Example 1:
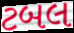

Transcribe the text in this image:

ટબલ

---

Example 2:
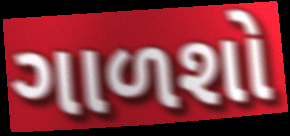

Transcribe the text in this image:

ગાળશો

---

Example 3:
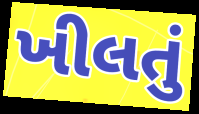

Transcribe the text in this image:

ખીલતું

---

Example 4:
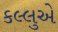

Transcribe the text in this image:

કલ્લુએ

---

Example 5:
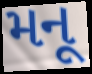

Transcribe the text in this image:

મનૂ